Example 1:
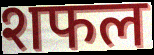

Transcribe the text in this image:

शफल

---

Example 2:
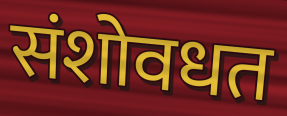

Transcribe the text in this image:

संशोवधत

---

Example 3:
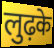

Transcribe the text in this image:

लुढ़के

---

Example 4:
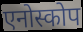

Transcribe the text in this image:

एनोस्कोप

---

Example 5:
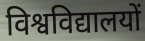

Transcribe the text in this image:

विश्वविद्यालयों